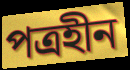
পত্রহীন